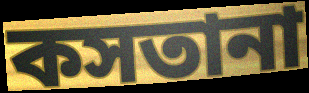
কসতানা